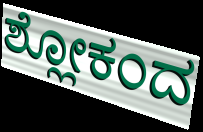
ಶ್ಲೋಕಂದ